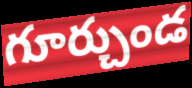
గూర్చుండ